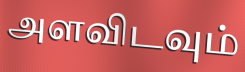
அளவிடவும்